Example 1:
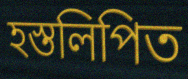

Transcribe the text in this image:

হস্তলিপিত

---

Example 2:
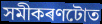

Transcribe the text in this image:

সমীকৰণটোত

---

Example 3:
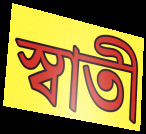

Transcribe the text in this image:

স্বাতী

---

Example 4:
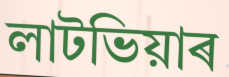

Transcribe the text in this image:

লাটভিয়াৰ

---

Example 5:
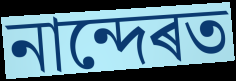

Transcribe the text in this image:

নান্দেৰত